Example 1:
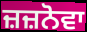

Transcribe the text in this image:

ਜ਼ਜ਼ਨੋਵਾ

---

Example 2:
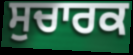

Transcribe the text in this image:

ਸੁਚਾਰਕ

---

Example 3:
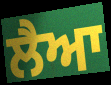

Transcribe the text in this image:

ਲੈਆ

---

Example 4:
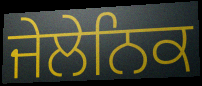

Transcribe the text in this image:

ਜੇਲੇਨਿਕ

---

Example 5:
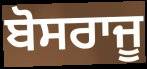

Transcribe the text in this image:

ਬੋਸਰਾਜੂ